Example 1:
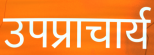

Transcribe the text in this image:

उपप्राचार्य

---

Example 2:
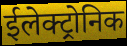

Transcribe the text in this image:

ईलेक्ट्रोनिक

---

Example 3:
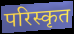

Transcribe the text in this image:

परिस्कृत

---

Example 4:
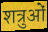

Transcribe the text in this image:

शत्रुओं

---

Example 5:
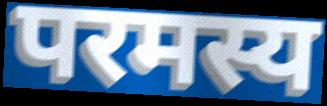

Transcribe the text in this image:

परमस्य